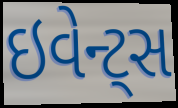
ઇવેન્ટ્સ